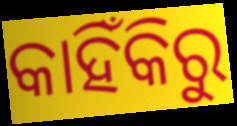
କାହିଁକିରୁ